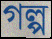
গল্প